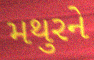
મથુરને